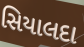
સિયાલદા